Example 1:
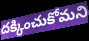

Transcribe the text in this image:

దక్కించుకోమని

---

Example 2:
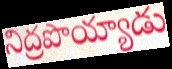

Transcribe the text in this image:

నిద్రపొయ్యాడు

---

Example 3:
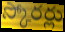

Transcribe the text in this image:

స్కోరర్లు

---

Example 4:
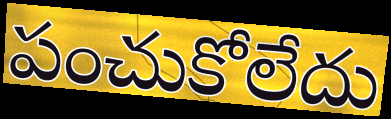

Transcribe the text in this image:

పంచుకోలేదు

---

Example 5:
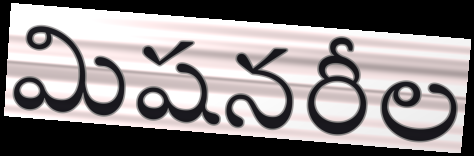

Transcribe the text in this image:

మిషనరీల